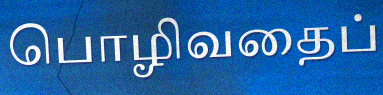
பொழிவதைப்